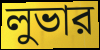
লুভার